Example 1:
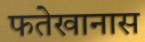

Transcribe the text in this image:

फतेखानास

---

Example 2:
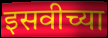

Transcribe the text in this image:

इसवीच्या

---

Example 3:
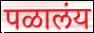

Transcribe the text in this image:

पळालंय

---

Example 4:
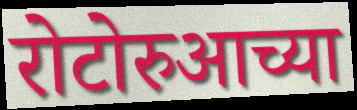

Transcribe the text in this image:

रोटोरुआच्या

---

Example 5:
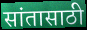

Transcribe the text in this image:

सांतासाठी